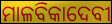
ମାଳବିକାଦେବୀ